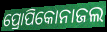
ପ୍ରୋପିକୋନାଜଲ